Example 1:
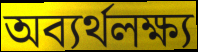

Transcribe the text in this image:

অব্যর্থলক্ষ্য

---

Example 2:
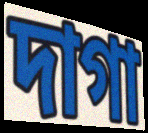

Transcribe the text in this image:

দাগা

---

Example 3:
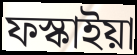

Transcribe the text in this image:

ফস্কাইয়া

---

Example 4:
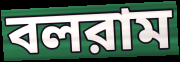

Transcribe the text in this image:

বলরাম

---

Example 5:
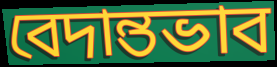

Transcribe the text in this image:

বেদান্তভাব